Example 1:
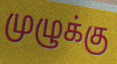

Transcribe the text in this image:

முழுக்கு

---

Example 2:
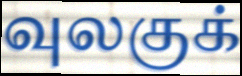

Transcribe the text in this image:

வுலகுக்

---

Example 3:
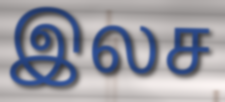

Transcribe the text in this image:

இலச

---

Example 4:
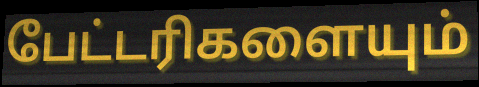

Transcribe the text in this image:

பேட்டரிகளையும்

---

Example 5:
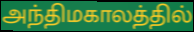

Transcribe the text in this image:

அந்திமகாலத்தில்